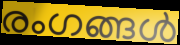
രംഗങ്ങൾ